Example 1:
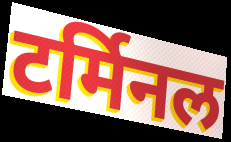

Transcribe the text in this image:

टर्मिनल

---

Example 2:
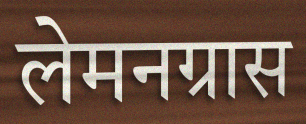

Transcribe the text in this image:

लेमनग्रास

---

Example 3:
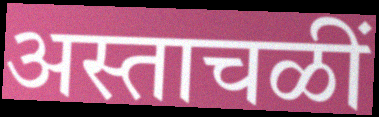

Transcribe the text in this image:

अस्ताचळीं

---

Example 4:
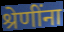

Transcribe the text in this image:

श्रेणींना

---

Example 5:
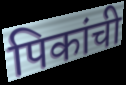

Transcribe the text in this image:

पिकांची